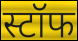
स्टॉफ